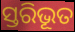
ସ୍ତରିଭୂତ